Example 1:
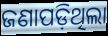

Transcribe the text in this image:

ଜଣାପଡ଼ିଥିଲା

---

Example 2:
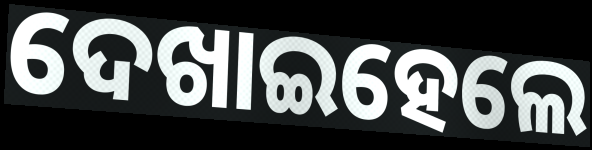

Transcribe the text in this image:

ଦେଖାଇହେଲେ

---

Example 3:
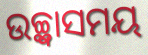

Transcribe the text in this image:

ଉଚ୍ଛ୍ଵାସମୟ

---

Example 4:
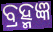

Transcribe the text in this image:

ବ୍ରହ୍ମଜ୍ଞ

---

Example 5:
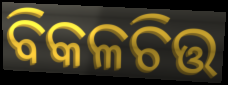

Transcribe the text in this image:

ବିକଳଚିତ୍ତ